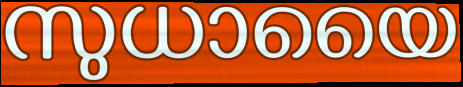
സുധായൈ